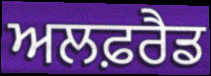
ਅਲਫ਼ਰੈਡ